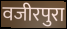
वजीरपुरा